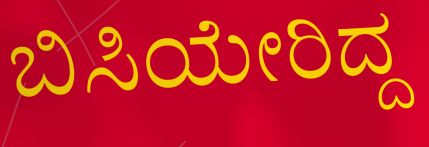
ಬಿಸಿಯೇರಿದ್ದ